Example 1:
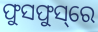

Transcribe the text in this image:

ଫୁସଫୁସ୍‌ରେ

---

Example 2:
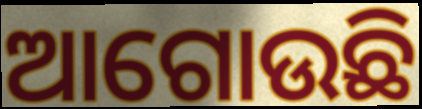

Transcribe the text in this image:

ଆଗୋଉଛି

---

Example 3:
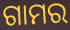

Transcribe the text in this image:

ଗାମର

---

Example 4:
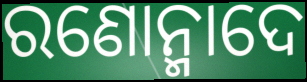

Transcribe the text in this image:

ରଣୋନ୍ମାଦେ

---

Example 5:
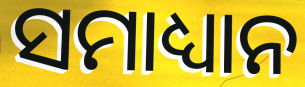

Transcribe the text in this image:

ସମାଧ୍ୟାନ